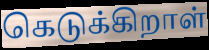
கெடுக்கிறாள்